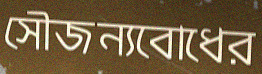
সৌজন্যবোধের